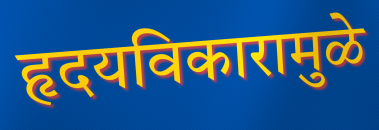
हृदयविकारामुळे